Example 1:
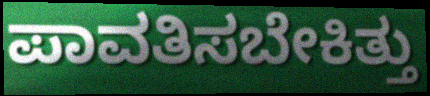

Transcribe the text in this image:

ಪಾವತಿಸಬೇಕಿತ್ತು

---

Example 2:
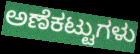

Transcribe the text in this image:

ಅಣೆಕಟ್ಟುಗಳು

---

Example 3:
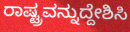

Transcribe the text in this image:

ರಾಷ್ಟ್ರವನ್ನುದ್ದೇಶಿಸಿ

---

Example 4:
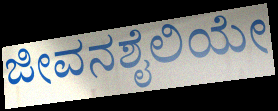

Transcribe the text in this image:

ಜೀವನಶೈಲಿಯೇ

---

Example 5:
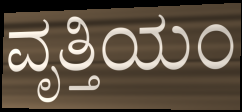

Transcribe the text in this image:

ವೃತ್ತಿಯಂ